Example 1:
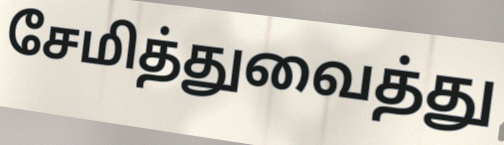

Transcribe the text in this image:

சேமித்துவைத்து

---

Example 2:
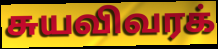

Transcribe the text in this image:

சுயவிவரக்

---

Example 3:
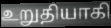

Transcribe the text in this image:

உறுதியாகி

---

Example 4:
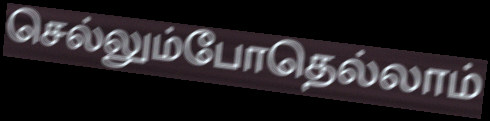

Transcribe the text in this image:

செல்லும்போதெல்லாம்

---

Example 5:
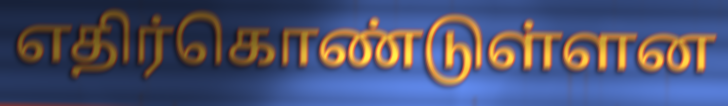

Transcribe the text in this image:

எதிர்கொண்டுள்ளன